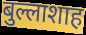
बुल्लाशाह